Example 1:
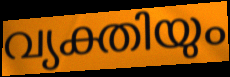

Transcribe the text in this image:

വ്യക്തിയും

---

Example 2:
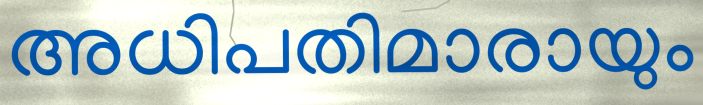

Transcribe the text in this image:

അധിപതിമാരായും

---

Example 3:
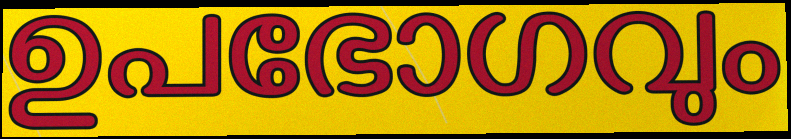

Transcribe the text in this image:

ഉപഭോഗവും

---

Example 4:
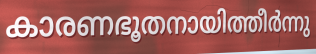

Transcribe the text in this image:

കാരണഭൂതനായിത്തീർന്നു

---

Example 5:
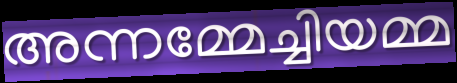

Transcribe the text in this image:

അന്നമ്മേച്ചിയമ്മ